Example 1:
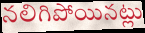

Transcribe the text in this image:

నలిగిపోయినట్లు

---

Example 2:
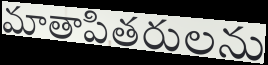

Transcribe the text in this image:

మాతాపితరులను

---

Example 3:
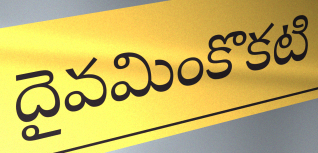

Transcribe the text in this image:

దైవమింకొకటి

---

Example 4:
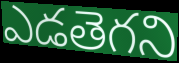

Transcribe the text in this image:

ఎడతెగని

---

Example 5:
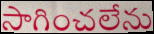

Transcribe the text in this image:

సాగించలేను